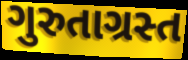
ગુરુતાગ્રસ્ત